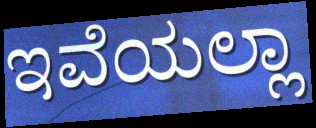
ಇವೆಯಲ್ಲಾ